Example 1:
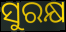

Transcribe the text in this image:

ସୁରକ୍ଷ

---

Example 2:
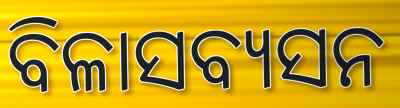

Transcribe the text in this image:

ବିଳାସବ୍ୟସନ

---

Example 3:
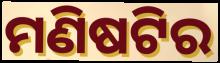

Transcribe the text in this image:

ମଣିଷଟିର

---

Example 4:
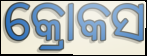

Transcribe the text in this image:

କ୍ରୋକସ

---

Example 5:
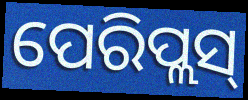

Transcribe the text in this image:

ପେରିପ୍ଲସ୍